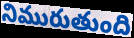
నిమురుతుంది